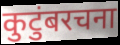
कुटुंबरचना